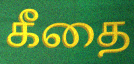
கீதை